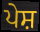
ਪੇਸ਼